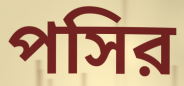
পসির